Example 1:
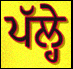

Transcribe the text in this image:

ਪੱਲ੍ਹੇ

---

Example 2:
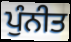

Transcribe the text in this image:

ਪੁੰਨੀਤ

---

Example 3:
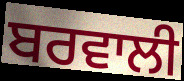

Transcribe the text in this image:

ਬਰਵਾਲੀ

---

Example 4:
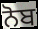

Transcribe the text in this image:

ਨੋਬ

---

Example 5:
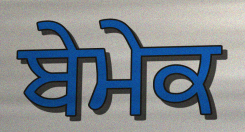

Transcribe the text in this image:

ਬੇਮੇਕ